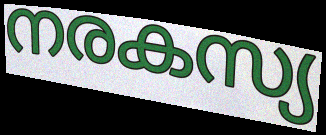
നരകസ്യ